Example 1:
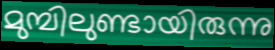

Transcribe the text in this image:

മുമ്പിലുണ്ടായിരുന്നു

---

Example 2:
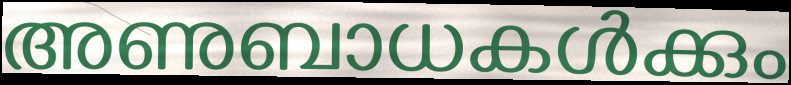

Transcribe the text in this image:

അണുബാധകൾക്കും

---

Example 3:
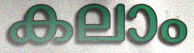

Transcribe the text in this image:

കലാം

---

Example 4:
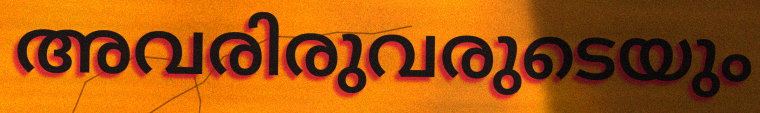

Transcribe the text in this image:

അവരിരുവരുടെയും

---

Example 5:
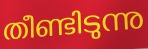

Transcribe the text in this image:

തീണ്ടിടുന്നു